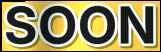
SOON